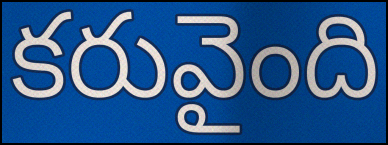
కరువైంది